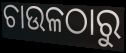
ଚାଉଳଠାରୁ